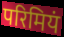
परिमियं